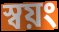
স্বয়ং